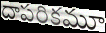
దాపరికమూ